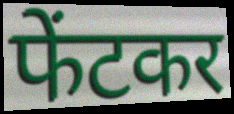
फेंटकर